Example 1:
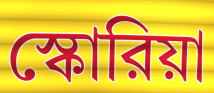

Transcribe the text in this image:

স্কোরিয়া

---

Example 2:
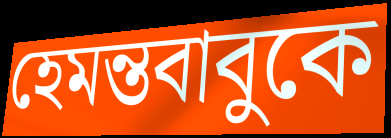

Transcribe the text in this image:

হেমন্তবাবুকে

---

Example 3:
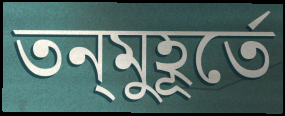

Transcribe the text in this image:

তন্‌মুহূর্তে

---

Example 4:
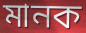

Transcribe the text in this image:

মানক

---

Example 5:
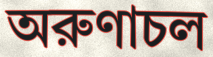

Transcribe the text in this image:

অরুণাচল